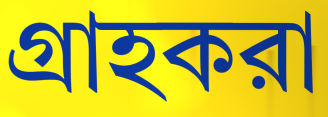
গ্রাহকরা